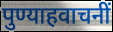
पुण्याहवाचनीं